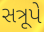
સત્રૂપે